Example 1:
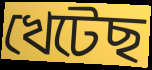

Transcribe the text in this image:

খেটেছ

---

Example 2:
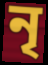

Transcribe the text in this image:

নৃ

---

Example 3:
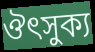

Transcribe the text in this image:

ঔৎসুক্য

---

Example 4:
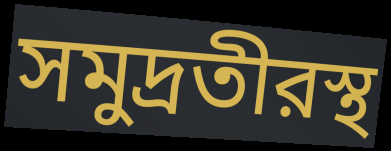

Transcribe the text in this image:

সমুদ্রতীরস্থ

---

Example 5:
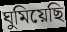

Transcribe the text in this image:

ঘুমিয়েছি